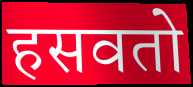
हसवतो